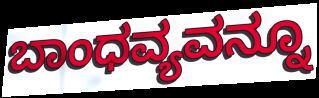
ಬಾಂಧವ್ಯವನ್ನೂ